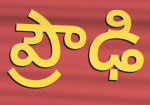
ప్రౌఢి